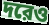
দরেও